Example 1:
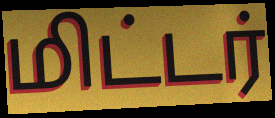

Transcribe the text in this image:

மிட்டர்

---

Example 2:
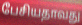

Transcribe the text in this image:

பேசியதாவது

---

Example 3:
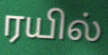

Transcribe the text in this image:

ரயில்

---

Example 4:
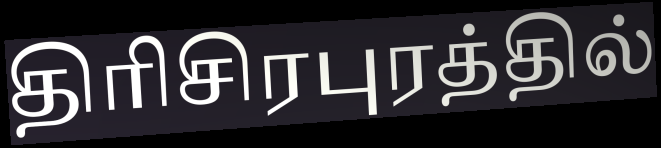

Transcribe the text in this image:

திரிசிரபுரத்தில்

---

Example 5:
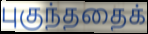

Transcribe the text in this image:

புகுந்ததைக்